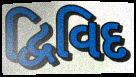
દ્વિવિદ